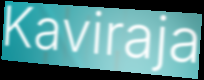
Kaviraja